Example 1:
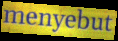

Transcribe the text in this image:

menyebut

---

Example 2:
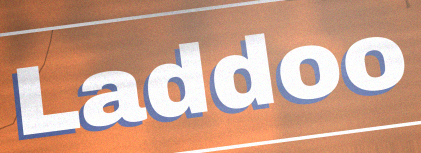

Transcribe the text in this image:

Laddoo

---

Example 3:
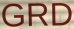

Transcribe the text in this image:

GRD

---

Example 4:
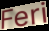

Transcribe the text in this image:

Feri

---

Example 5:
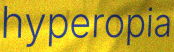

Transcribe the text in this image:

hyperopia